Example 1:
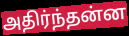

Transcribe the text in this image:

அதிர்ந்தன்ன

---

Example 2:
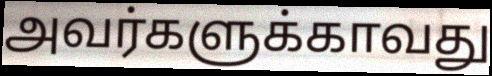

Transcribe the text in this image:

அவர்களுக்காவது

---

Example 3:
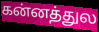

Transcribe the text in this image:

கன்னத்துல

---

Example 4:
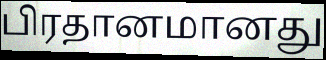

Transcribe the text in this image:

பிரதானமானது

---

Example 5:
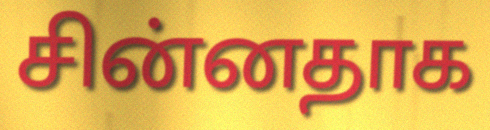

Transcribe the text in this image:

சின்னதாக